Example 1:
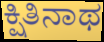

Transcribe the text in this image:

ಕ್ಷಿತಿನಾಥ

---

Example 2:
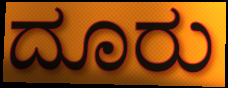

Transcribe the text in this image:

ದೂರು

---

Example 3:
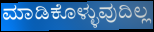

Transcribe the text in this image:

ಮಾಡಿಕೊಳ್ಳುವುದಿಲ್ಲ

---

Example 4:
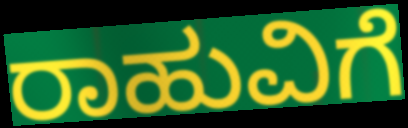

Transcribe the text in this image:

ರಾಹುವಿಗೆ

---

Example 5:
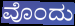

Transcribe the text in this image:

ವೊಂದು